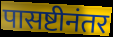
पासष्टीनंतर